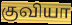
குவியா